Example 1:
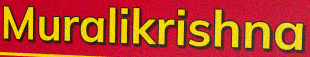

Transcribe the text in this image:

Muralikrishna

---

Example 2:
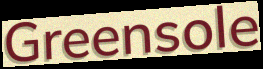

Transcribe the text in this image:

Greensole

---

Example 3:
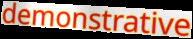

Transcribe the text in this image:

demonstrative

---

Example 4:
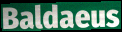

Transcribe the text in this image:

Baldaeus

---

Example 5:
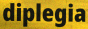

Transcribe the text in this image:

diplegia